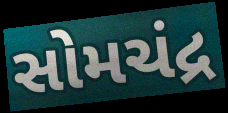
સોમચંદ્ર